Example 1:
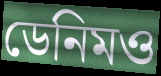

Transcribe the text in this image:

ডেনিমও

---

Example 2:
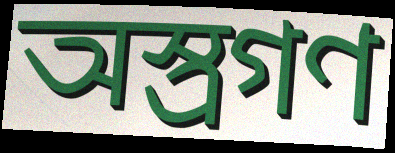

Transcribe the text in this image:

অস্ত্রগণ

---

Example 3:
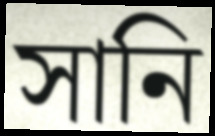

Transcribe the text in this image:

সানি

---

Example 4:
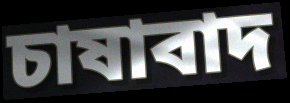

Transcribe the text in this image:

চাষাবাদ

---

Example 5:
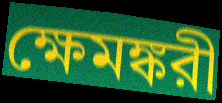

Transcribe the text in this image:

ক্ষেমঙ্করী